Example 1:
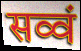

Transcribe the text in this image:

सव्वं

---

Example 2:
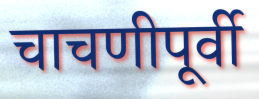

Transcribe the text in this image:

चाचणीपूर्वी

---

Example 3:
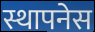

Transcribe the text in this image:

स्थापनेस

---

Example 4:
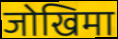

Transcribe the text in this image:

जोखिमा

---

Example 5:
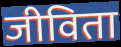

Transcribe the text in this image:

जीविता